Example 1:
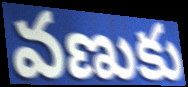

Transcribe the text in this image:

వణుకు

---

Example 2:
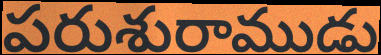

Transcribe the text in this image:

పరుశురాముడు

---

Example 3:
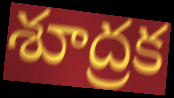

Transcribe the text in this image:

శూద్రక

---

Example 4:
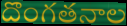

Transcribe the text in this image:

దొంగతనాల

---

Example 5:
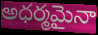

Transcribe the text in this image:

అధర్మమైనా